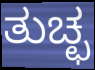
ತುಚ್ಛ